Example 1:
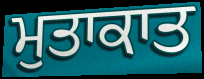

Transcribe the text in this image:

ਮੁਤਾਕਾਤ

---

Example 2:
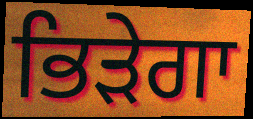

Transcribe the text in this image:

ਭਿੜੇਗਾ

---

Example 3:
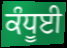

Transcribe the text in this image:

ਕੰਧੂਈ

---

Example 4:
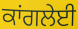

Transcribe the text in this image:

ਕਾਂਗਲੇਈ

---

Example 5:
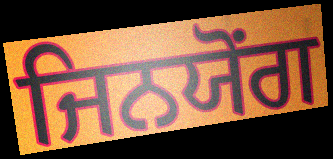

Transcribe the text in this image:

ਜਿਨਯੋਂਗ